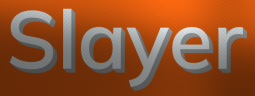
Slayer